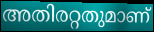
അതിരറ്റതുമാണ്